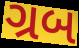
ગ્રબ